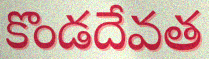
కొండదేవత